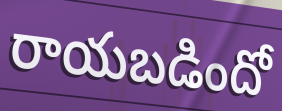
రాయబడిందో